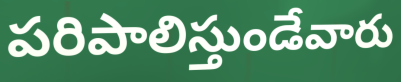
పరిపాలిస్తుండేవారు